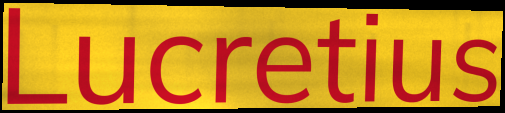
Lucretius